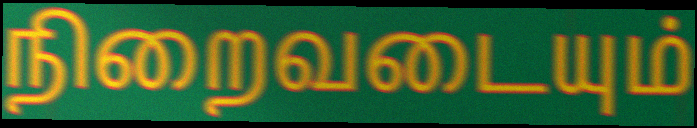
நிறைவடையும்